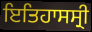
ਇਤਿਹਾਸਸ੍ਰੀ